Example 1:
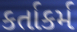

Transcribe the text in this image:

કર્તાકર્મ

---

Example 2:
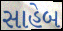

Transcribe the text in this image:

સાહેબ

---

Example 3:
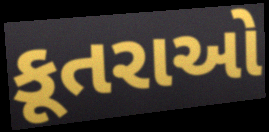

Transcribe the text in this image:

કૂતરાઓ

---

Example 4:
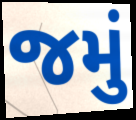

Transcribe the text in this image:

જમું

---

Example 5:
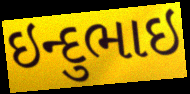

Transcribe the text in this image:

ઇન્દુભાઇ